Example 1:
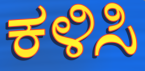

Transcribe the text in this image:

ಕಳಿಸಿ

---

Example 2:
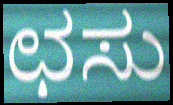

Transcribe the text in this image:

ಛಸು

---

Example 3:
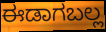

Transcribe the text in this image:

ಈಡಾಗಬಲ್ಲ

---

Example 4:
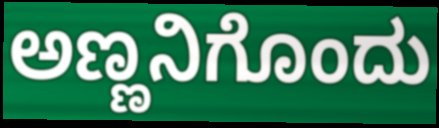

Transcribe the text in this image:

ಅಣ್ಣನಿಗೊಂದು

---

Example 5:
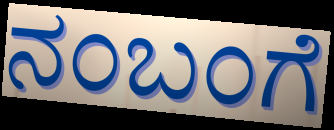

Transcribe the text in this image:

ನಂಬಂಗೆ